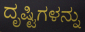
ದೃಷ್ಟಿಗಳನ್ನು